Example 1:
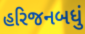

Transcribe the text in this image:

હરિજનબધું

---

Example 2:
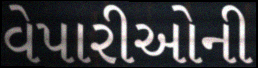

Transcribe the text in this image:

વેપારીઓની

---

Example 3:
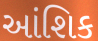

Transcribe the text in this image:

આંશિક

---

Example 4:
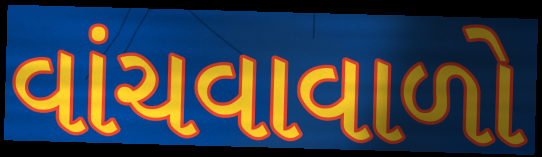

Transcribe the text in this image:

વાંચવાવાળો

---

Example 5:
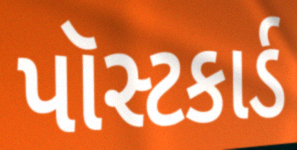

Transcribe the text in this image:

પૉસ્ટકાર્ડ